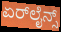
ಏರ್‌ಲೈನ್ಸ್